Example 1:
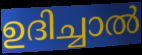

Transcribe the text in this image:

ഉദിച്ചാൽ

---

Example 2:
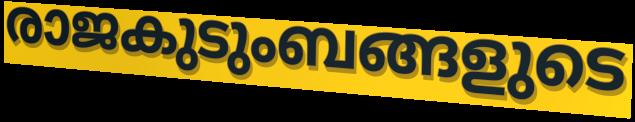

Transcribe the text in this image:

രാജകുടുംബങ്ങളുടെ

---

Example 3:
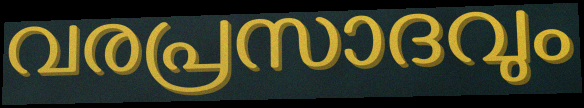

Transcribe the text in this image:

വരപ്രസാദവും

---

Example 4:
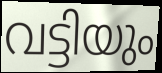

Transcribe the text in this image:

വട്ടിയും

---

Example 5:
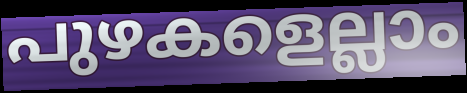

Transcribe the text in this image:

പുഴകളെല്ലാം